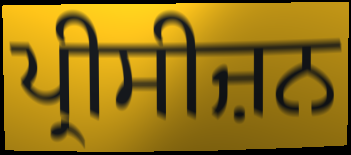
ਪ੍ਰੀਸੀਜ਼ਨ